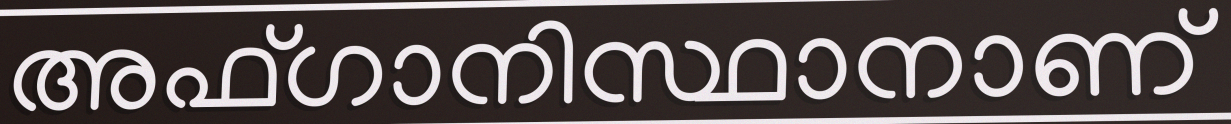
അഫ്ഗാനിസ്ഥാനാണ്